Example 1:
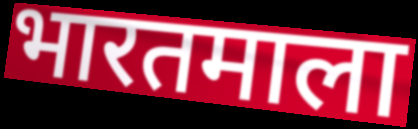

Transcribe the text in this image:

भारतमाला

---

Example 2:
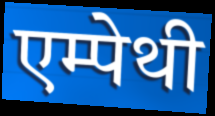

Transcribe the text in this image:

एम्पेथी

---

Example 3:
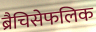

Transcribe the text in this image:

ब्रैचिसेफलिक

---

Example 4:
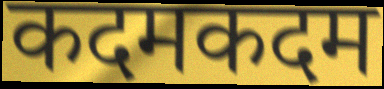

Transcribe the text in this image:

कदमकदम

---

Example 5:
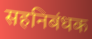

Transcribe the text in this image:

सहनिबंधक